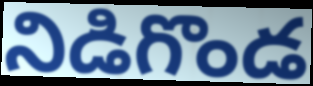
నిడిగొండ